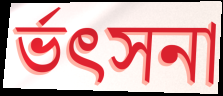
র্ভৎসনা